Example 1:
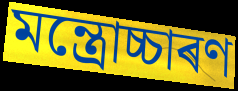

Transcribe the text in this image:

মন্ত্ৰোচ্চাৰণ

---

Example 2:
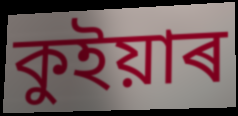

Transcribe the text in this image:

কুইয়াৰ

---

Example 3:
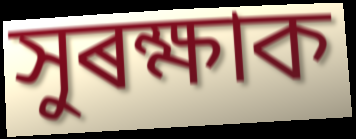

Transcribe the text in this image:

সুৰক্ষাক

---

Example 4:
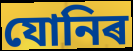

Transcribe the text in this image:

যোনিৰ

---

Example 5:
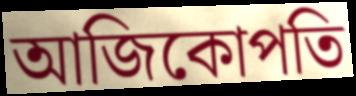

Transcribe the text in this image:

আজিকোপতি